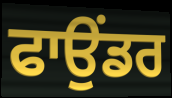
ਫਾਉਂਡਰ